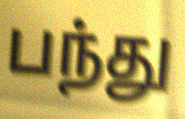
பந்து